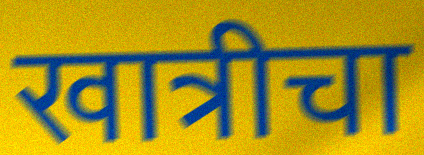
खात्रीचा